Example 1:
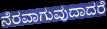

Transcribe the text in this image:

ನೆರವಾಗುವುದಾದರೆ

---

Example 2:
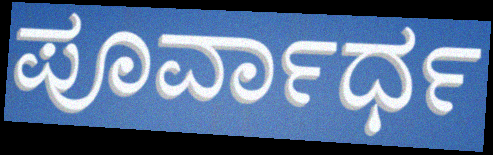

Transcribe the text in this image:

ಪೂರ್ವಾರ್ಧ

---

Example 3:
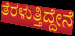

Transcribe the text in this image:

ತೆರಳುತ್ತಿದ್ದೇನೆ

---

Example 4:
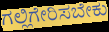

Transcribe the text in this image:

ಗಲ್ಲಿಗೇರಿಸಬೇಕು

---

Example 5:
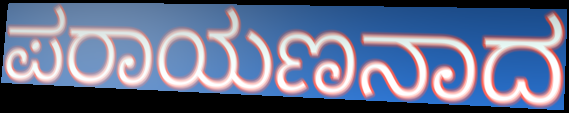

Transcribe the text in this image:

ಪರಾಯಣನಾದ